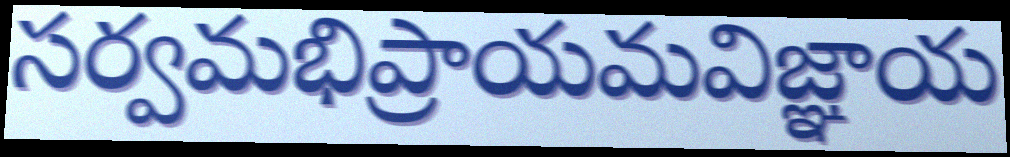
సర్వమభిప్రాయమవిజ్ఞాయ